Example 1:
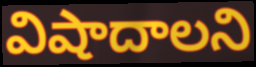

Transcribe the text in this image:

విషాదాలని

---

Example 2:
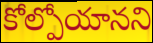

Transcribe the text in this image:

కోల్పోయానని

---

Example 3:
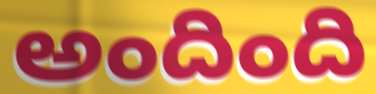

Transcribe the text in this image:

అందింది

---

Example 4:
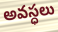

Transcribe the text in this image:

అవస్ధలు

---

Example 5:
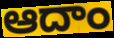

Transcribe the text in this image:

ఆదాం